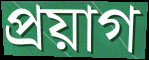
প্ৰয়াগ